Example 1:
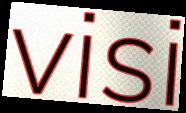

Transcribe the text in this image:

visi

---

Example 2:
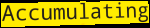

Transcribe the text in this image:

Accumulating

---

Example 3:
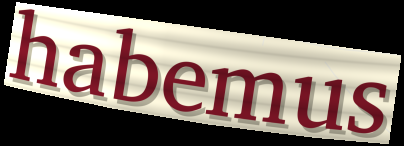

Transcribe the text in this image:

habemus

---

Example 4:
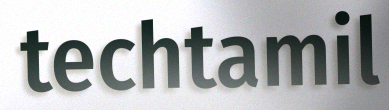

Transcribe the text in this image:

techtamil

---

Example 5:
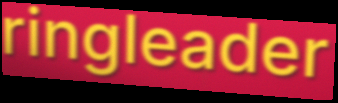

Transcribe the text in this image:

ringleader